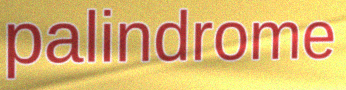
palindrome